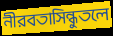
নীরবতাসিন্ধুতলে